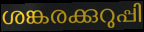
ശങ്കരക്കുറുപ്പി